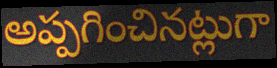
అప్పగించినట్లుగా